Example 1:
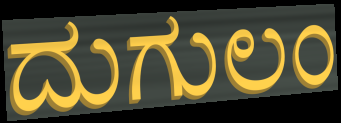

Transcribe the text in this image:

ದುಗುಲಂ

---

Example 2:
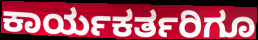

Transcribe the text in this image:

ಕಾರ್ಯಕರ್ತರಿಗೂ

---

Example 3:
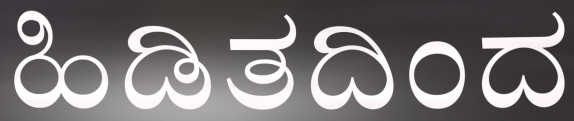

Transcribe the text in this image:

ಹಿಡಿತದಿಂದ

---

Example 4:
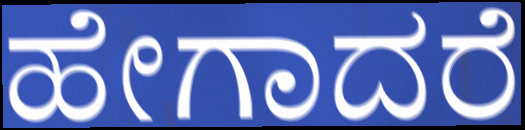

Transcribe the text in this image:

ಹೇಗಾದರೆ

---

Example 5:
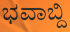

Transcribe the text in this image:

ಭವಾಬ್ದಿ